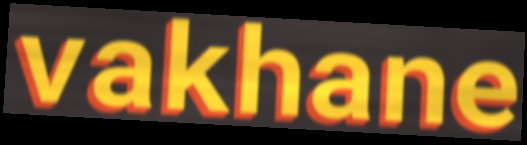
vakhane